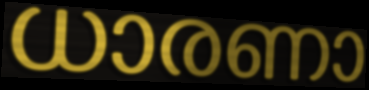
ധാരണാ